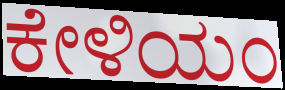
ಕೇಳಿಯಂ